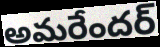
అమరేందర్